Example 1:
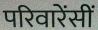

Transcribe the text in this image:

परिवारेंसीं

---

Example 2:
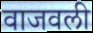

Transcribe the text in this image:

वाजवली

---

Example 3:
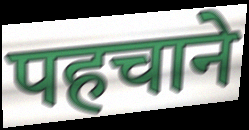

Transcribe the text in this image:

पहचाने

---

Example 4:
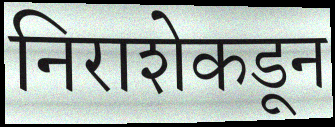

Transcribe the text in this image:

निराशेकडून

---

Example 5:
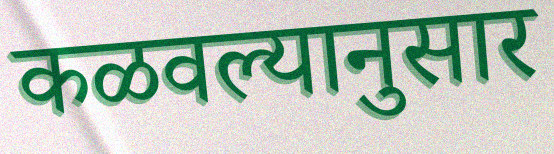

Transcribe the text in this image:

कळवल्यानुसार